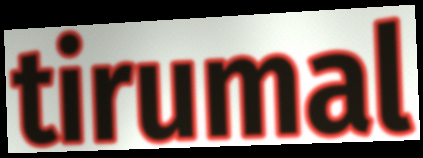
tirumal